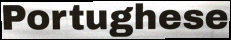
Portughese